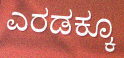
ಎರಡಕ್ಕೂ